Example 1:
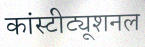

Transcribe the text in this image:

कांस्टीट्यूशनल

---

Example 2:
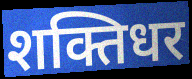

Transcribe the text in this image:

शक्तिधर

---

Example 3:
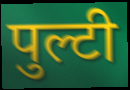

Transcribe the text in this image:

पुल्टी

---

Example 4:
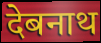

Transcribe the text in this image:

देबनाथ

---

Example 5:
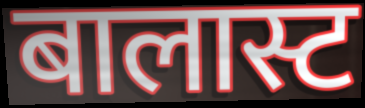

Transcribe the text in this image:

बालास्ट